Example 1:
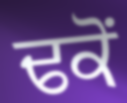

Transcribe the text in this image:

ਢਕੋਂ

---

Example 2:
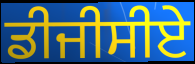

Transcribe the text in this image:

ਡੀਜੀਸੀਏ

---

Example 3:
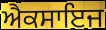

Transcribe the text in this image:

ਐਕਸਾਇਜ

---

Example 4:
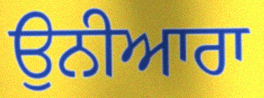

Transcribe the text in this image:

ਉਨੀਆਰਾ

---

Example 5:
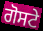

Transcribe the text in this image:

ਗੋਸਟੇ